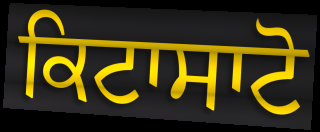
ਕਿਟਾਸਾਟੋ